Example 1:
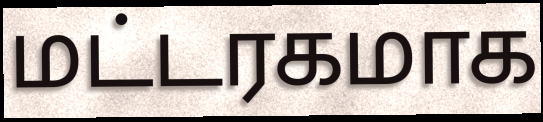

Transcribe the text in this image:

மட்டரகமாக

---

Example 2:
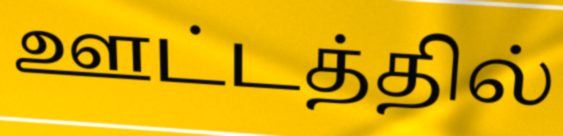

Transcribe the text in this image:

ஊட்டத்தில்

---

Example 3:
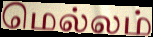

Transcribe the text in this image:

மெல்லம்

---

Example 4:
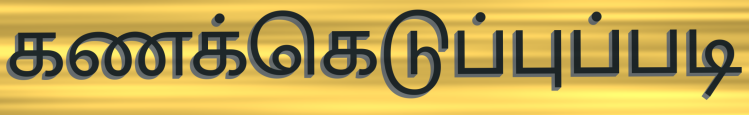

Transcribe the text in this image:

கணக்கெடுப்புப்படி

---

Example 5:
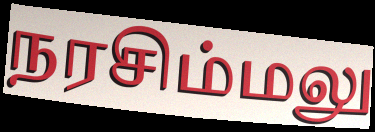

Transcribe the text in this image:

நரசிம்மலு